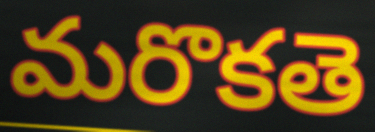
మరొకతె